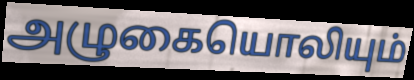
அழுகையொலியும்